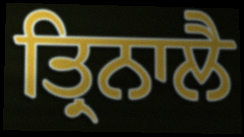
ਤ੍ਰਿਨਾਲੈ